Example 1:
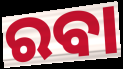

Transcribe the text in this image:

ରବା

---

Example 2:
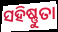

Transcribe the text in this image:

ସହିଷ୍ଣୁତା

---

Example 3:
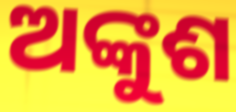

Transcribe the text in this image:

ଅଙ୍କୁଶ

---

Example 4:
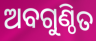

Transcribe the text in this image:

ଅବଗୁଣ୍ଠିତ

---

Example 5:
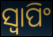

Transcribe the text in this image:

ସ୍ବାପିଂ